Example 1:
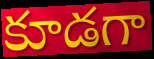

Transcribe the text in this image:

కూడగా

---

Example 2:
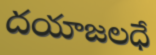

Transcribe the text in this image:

దయాజలధే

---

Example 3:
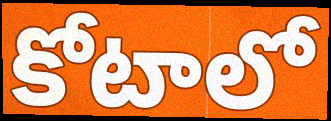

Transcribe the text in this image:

కోటాలో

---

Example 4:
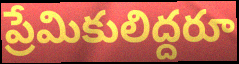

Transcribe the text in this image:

ప్రేమికులిద్దరూ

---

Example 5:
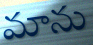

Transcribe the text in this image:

మాను